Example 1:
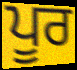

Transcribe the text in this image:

ਪੂਰ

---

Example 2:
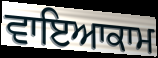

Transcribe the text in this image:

ਵਾਇਆਕਾਮ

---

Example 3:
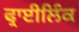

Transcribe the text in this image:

ਫ੍ਰਾਈਲਿੰਕ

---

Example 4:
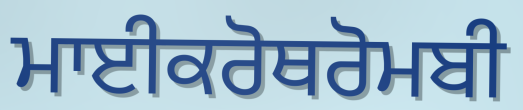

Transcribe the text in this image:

ਮਾਈਕਰੋਥਰੋਮਬੀ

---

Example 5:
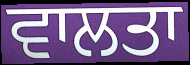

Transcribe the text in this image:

ਵਾਲਤਾ